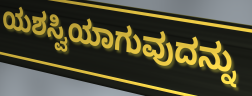
ಯಶಸ್ವಿಯಾಗುವುದನ್ನು